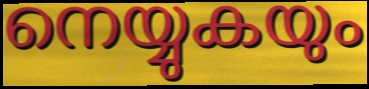
നെയ്യുകയും